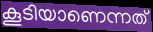
കൂടിയാണെന്നത്